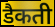
डैकती